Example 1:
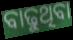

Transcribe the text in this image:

ବାଢୁଥିବା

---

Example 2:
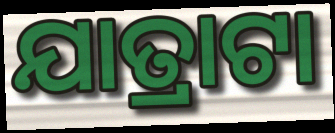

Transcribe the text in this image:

ଯାତ୍ରାଟା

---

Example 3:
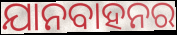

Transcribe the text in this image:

ଯାନବାହନର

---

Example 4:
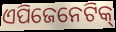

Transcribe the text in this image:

ଏପିଜେନେଟିକ୍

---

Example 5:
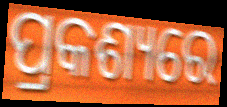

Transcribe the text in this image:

ପ୍ରକଶ୍ୟରେ